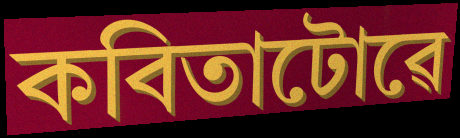
কবিতাটোৱে